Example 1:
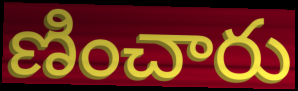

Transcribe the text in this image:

ణించారు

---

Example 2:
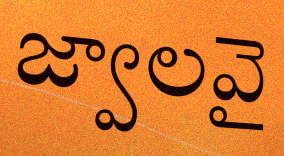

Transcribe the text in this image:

జ్వాలవై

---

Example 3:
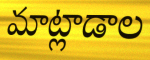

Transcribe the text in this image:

మాట్లాడాల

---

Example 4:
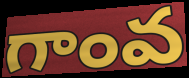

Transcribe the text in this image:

గాంవ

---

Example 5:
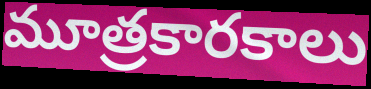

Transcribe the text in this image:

మూత్రకారకాలు